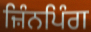
ਜ਼ਿੰਨਪਿੰਗ